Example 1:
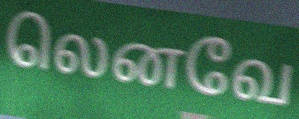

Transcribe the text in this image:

லெனவே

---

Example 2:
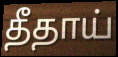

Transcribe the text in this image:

தீதாய்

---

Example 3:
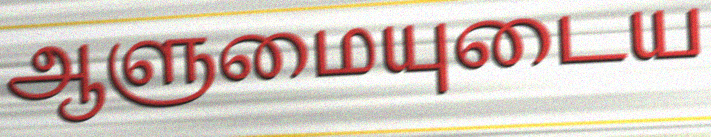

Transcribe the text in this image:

ஆளுமையுடைய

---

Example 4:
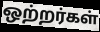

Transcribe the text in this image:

ஒற்றர்கள்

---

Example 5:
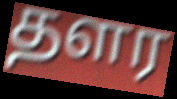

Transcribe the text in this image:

தளர